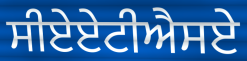
ਸੀਏਏਟੀਐਸਏ